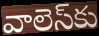
వాలెస్‌కు